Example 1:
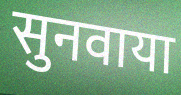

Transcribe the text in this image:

सुनवाया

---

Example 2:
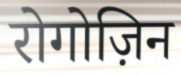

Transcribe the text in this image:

रोगोज़िन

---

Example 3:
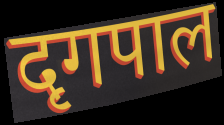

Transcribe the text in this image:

दृगपाल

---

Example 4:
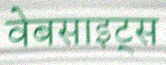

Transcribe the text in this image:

वेबसाइट्स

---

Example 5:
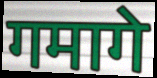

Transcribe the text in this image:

गमागे